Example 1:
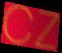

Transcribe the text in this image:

CZ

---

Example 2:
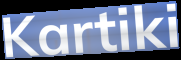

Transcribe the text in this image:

Kartiki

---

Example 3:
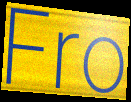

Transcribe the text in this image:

Fro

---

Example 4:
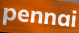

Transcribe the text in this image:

pennai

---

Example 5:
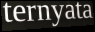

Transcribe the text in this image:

ternyata